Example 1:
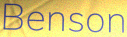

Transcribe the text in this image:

Benson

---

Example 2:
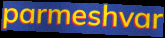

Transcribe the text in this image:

parmeshvar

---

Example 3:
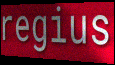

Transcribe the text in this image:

regius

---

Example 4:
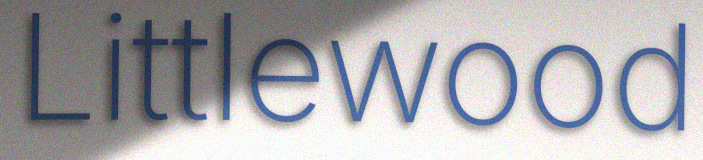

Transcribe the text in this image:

Littlewood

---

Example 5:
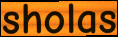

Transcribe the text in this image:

sholas